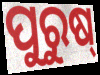
ପୁରୁଷ୍